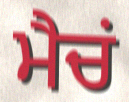
ਮੈਚਂ